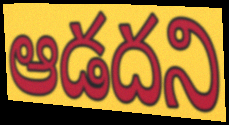
ఆడదని